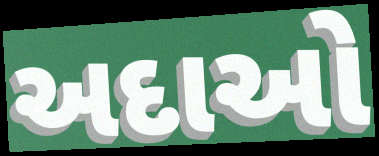
અદાઓ